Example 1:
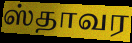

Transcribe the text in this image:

ஸ்தாவர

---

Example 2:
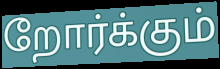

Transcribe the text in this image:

றோர்க்கும்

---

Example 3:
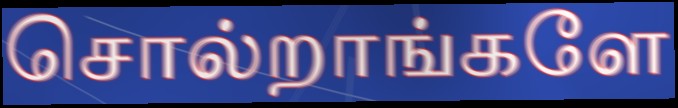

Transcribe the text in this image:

சொல்றாங்களே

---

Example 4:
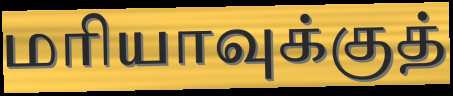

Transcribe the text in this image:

மரியாவுக்குத்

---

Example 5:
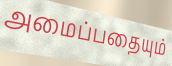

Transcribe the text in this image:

அமைப்பதையும்